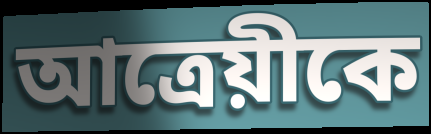
আত্রেয়ীকে